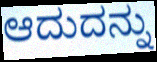
ಆದುದನ್ನು